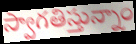
స్వాగతిస్తున్నాం